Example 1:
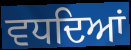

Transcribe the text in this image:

ਵਧਦਿਆਂ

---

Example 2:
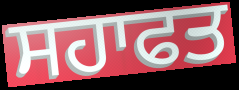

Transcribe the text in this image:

ਸਹਾਫਤ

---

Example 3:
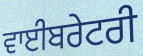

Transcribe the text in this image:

ਵਾਈਬਰੇਟਰੀ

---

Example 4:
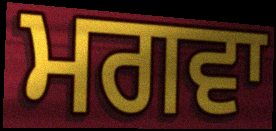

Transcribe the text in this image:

ਮਗਵਾ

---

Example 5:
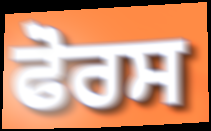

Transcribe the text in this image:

ਫੋਰਸ